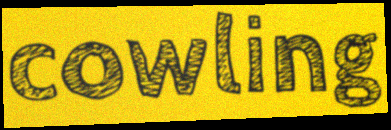
cowling